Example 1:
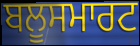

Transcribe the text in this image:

ਬਲੂਸਮਾਰਟ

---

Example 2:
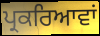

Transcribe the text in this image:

ਪ੍ਰਕਰਿਆਵਾਂ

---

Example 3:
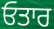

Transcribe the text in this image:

ਓਤਾਰ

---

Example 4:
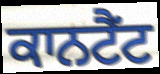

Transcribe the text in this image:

ਕਾਨਟੈਂਟ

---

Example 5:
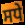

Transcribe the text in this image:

ਸਧੇ